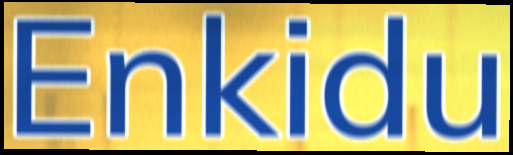
Enkidu